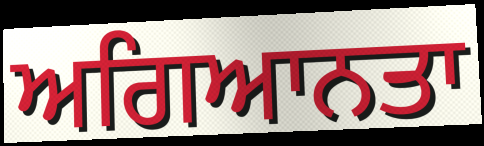
ਅਗਿਆਨਤਾ